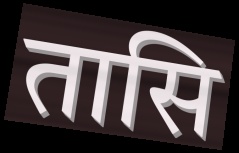
तासि